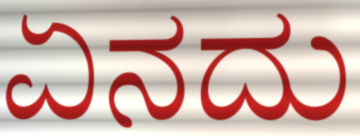
ಏನದು